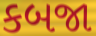
કબજા